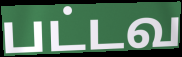
பட்டவ